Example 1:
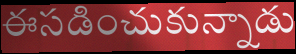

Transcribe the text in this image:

ఈసడించుకున్నాడు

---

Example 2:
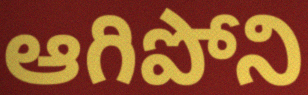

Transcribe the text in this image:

ఆగిపోని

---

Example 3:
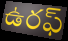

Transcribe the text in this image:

ఉరఫ్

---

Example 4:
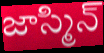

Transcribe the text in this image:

జాస్మిన్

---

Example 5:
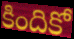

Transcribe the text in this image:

కిందికో